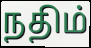
நதிம்